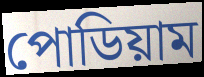
পোডিয়াম